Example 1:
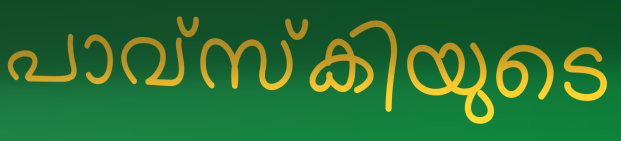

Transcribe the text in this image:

പാവ്സ്കിയുടെ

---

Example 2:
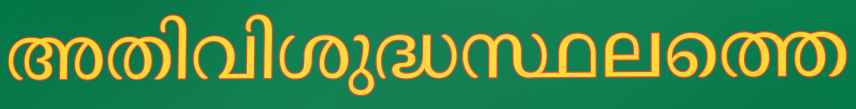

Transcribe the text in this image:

അതിവിശുദ്ധസ്ഥലത്തെ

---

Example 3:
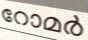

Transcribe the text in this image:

റോമർ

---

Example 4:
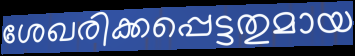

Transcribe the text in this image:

ശേഖരിക്കപ്പെട്ടതുമായ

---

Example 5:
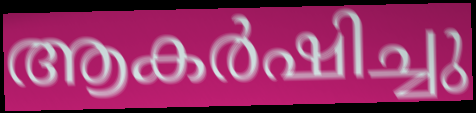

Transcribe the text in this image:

ആകർഷിച്ചു